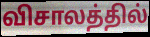
விசாலத்தில்